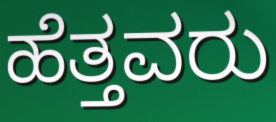
ಹೆತ್ತವರು